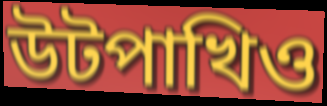
উটপাখিও